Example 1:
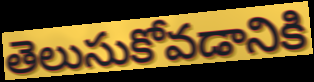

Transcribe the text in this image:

తెలుసుకోవడానికి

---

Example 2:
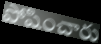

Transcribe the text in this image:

పోషించారు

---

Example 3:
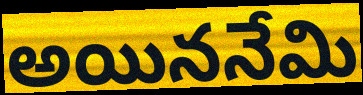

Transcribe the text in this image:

అయిననేమి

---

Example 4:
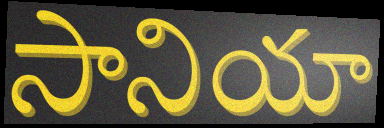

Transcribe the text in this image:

సానియా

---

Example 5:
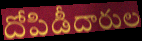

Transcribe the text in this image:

దోపిడీదారుల